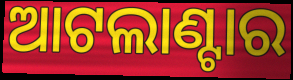
ଆଟଲାଣ୍ଟାର